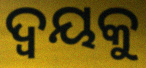
ଦ୍ଵୟକୁ